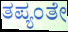
ತಪ್ಯಂತೇ